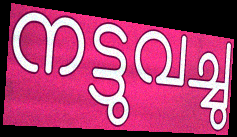
നട്ടുവച്ചു